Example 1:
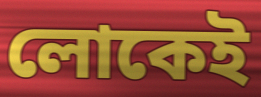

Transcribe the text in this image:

লোকেই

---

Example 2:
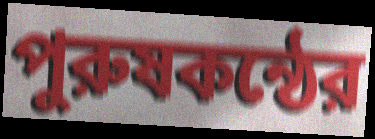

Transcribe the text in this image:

পুরুষকন্ঠের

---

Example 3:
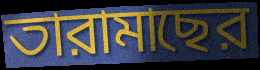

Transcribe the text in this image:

তারামাছের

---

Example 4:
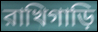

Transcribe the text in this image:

রাখিগাড়ি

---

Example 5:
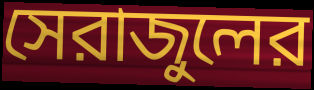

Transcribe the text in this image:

সেরাজুলের